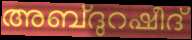
അബ്ദുറഷീദ്